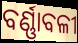
ବର୍ଣ୍ଣାବଳୀ